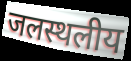
जलस्थलीय